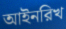
আইনরিখ